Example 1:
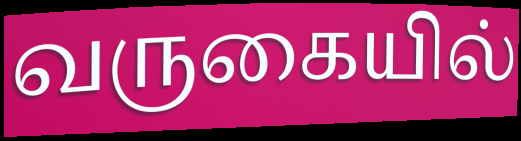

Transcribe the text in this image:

வருகையில்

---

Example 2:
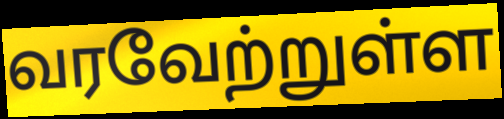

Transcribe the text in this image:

வரவேற்றுள்ள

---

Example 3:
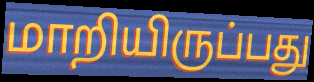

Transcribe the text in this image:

மாறியிருப்பது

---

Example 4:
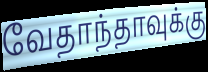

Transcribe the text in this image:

வேதாந்தாவுக்கு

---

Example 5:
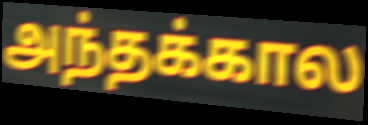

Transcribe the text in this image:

அந்தக்கால